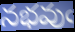
నభవుఁ